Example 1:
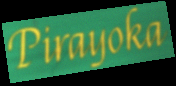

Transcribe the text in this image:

Pirayoka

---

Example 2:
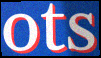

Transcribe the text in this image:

ots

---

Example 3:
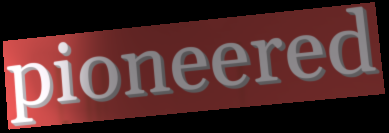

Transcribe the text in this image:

pioneered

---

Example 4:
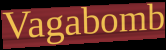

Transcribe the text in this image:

Vagabomb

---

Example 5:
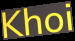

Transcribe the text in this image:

Khoi